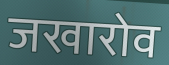
जखारोव